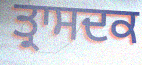
ਤ੍ਰਾਸਦਕ